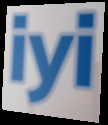
iyi